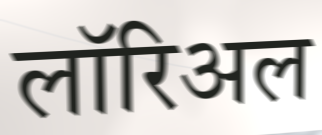
लॉरिअल